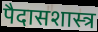
पैदासशास्त्र